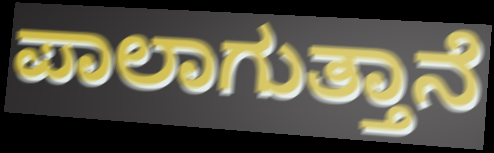
ಪಾಲಾಗುತ್ತಾನೆ